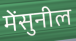
मेंसुनील